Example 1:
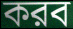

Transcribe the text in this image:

করব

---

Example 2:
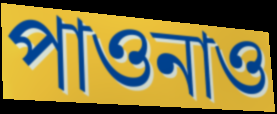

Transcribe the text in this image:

পাওনাও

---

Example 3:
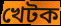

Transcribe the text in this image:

খেটক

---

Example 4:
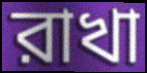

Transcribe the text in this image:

রাখা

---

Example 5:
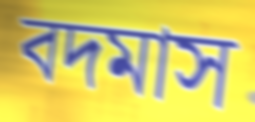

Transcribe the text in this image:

বদমাস